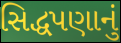
સિદ્ધપણાનું